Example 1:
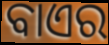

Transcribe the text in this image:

ବାଏର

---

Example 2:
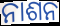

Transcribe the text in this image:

ନାଶନ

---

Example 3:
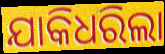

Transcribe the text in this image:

ଯାକିଧରିଲା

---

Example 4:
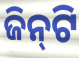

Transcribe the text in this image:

ଜିନ୍‌ଟି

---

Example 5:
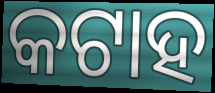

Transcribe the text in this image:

କଟାହ